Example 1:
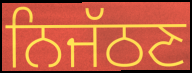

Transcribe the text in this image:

ਨਿਜੱਠਣ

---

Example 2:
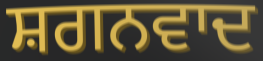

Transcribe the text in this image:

ਸ਼ਗਨਵਾਦ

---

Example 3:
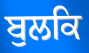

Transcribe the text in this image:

ਬੁਲਕਿ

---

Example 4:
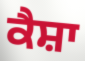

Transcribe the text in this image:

ਕੈਸ਼ਾ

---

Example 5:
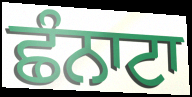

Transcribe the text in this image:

ਛੰਨਾਟਾ